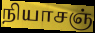
நியாசஞ்